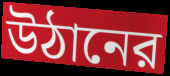
উঠানের